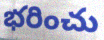
భరించు